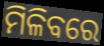
ମିଳିବରେ